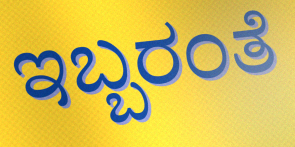
ಇಬ್ಬರಂತೆ